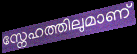
സ്നേഹത്തിലുമാണ്